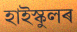
হাইস্কুলৰ